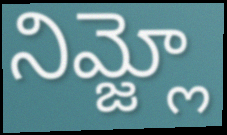
నిమ్జ్లో